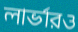
লার্ভারও